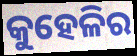
କୁହେଳିର